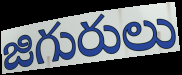
జిగురులు